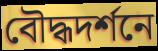
বৌদ্ধদর্শনে